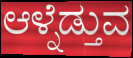
ಆಳ್ನೆಡ್ತುವ